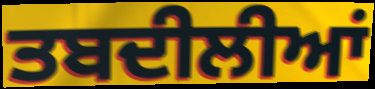
ਤਬਦੀਲੀਆਂ